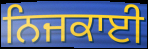
ਨਿਜਕਾਈ